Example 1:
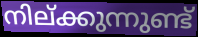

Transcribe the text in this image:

നില്ക്കുന്നുണ്ട്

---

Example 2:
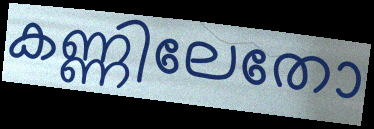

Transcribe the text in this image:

കണ്ണിലേതോ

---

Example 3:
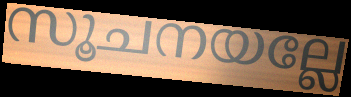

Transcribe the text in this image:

സൂചനയല്ലേ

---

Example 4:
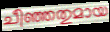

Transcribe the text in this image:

ചീഞ്ഞതുമായ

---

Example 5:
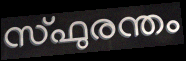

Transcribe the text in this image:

സ്ഫുരന്തം